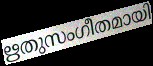
ഋതുസംഗീതമായി